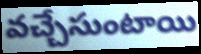
వచ్చేసుంటాయి